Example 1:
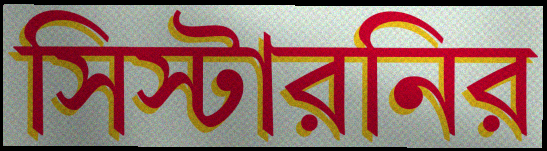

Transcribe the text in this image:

সিস্টারনির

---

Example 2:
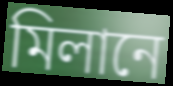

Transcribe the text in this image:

মিলানে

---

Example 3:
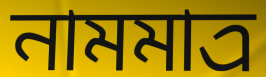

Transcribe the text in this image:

নামমাত্র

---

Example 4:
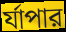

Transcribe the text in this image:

র্যাপার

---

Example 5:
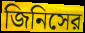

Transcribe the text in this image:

জিনিসের